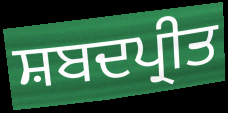
ਸ਼ਬਦਪ੍ਰੀਤ